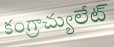
కంగ్రాచ్యులేట్